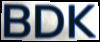
BDK